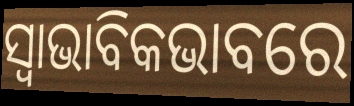
ସ୍ୱାଭାବିକଭାବରେ